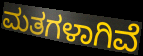
ಮತಗಳಾಗಿವೆ